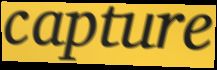
capture